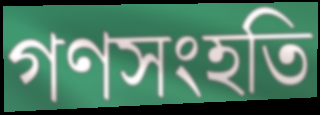
গণসংহতি